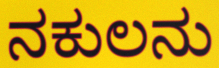
ನಕುಲನು